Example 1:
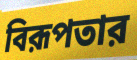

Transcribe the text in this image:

বিরূপতার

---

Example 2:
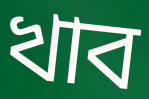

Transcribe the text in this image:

খাব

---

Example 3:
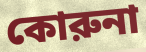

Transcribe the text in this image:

কোরুনা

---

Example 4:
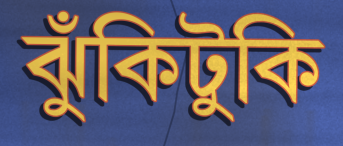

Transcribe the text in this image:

ঝুঁকিটুকি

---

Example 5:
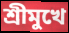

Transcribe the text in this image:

শ্রীমুখে